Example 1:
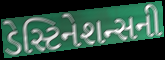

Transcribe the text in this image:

ડેસ્ટિનેશન્સની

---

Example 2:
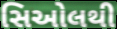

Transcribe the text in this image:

સિઓલથી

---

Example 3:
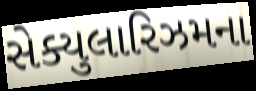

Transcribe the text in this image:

સેક્યુલારિઝમના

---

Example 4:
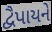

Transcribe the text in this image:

દ્વૈપાયને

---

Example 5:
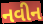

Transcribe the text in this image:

નવીન